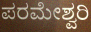
ಪರಮೇಶ್ವರಿ